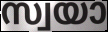
സ്വയാ